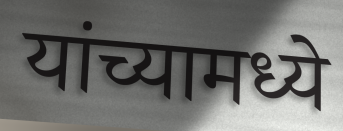
यांच्यामध्ये